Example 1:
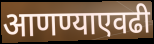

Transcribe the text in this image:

आणण्याएवढी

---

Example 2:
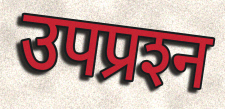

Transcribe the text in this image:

उपप्रश्‍न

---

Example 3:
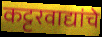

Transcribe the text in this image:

कट्टरवाद्यांचे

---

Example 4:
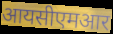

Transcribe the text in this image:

आयसीएमआर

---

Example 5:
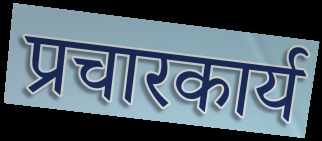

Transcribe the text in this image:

प्रचारकार्य